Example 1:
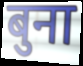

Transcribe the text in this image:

बुना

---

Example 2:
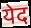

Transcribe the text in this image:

येद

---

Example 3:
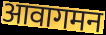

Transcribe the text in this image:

आवागमन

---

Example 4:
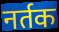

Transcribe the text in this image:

नर्तक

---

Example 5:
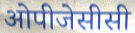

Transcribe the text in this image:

ओपीजेसीसी